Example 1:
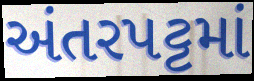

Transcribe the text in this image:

અંતરપટ્ટમાં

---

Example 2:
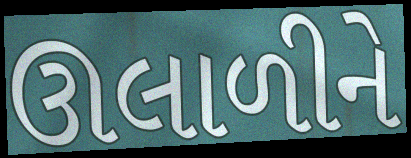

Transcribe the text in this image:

ઊલાળીને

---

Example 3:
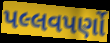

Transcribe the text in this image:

પલ્લવપર્ણો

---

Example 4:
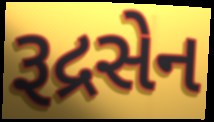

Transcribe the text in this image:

રૂદ્રસેન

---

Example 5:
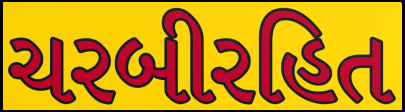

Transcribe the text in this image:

ચરબીરહિત